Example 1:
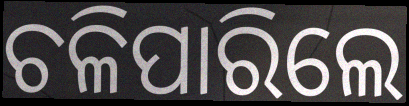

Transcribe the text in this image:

ଚଳିପାରିଲେ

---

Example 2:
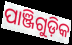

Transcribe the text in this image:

ପାଞ୍ଜିଗୁଡ଼ିକ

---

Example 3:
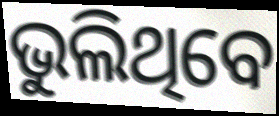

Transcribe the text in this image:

ଭୁଲିଥିବେ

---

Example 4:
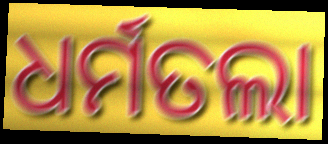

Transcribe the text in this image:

ଧର୍ମତଲା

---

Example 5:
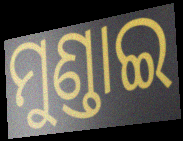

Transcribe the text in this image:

ମୁଣ୍ଡାଇ